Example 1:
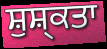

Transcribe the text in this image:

ਸ਼ੁਸ਼੍ਕਤਾ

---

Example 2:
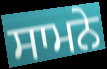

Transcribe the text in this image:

ਸਾਮਨੇ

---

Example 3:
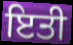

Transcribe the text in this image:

ਇਤੀ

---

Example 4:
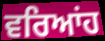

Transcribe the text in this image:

ਵਰਿਆਂਹ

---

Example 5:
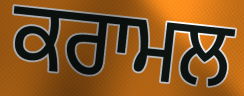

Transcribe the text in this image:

ਕਰਾਮਲ